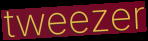
tweezer